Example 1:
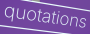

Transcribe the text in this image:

quotations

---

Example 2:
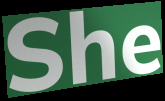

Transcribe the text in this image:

She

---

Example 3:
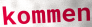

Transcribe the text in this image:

kommen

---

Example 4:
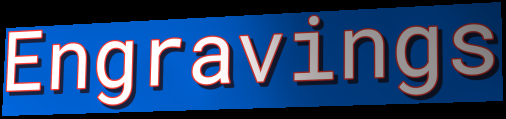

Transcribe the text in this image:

Engravings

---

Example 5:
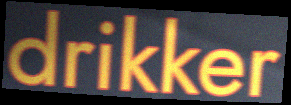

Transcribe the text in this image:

drikker